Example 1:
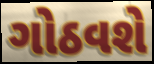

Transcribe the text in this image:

ગોઠવશે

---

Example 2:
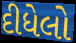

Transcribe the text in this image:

દીધેલો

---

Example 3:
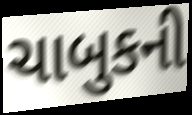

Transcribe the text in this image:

ચાબુકની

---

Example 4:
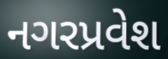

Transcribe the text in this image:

નગરપ્રવેશ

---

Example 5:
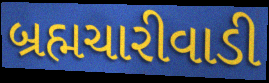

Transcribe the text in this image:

બ્રહ્મચારીવાડી